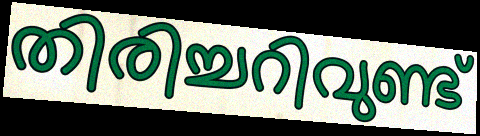
തിരിച്ചറിവുണ്ട്